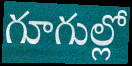
గూగుల్లో